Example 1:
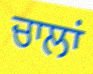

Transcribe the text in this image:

ਚਾਲਾਂ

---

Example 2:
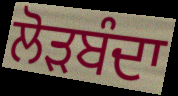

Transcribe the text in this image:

ਲੋੜਬੰਦਾ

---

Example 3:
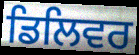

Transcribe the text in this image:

ਡਿਲਿਵਰ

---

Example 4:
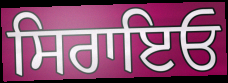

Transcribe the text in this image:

ਸਿਰਾਇਓ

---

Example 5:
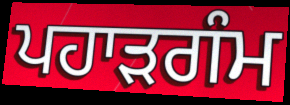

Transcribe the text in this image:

ਪਹਾੜਗੰਮ